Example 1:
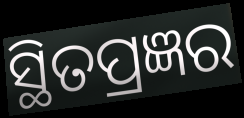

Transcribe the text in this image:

ସ୍ଥିତପ୍ରଜ୍ଞର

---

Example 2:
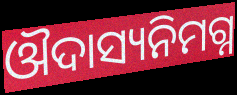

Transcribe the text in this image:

ଔଦାସ୍ୟନିମଗ୍ନ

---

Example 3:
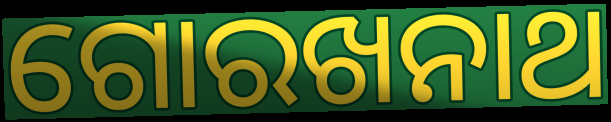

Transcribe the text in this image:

ଗୋରଖନାଥ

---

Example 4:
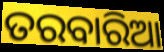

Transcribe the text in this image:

ତରବାରିଆ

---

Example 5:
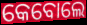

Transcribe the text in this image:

କେବୋଲେ